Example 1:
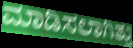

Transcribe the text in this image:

ಮಾಡಿಸಲಾಗಿತ್ತು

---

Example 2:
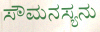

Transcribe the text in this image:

ಸೌಮನಸ್ಯನು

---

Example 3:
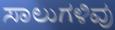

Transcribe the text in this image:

ಸಾಲುಗಳಿವು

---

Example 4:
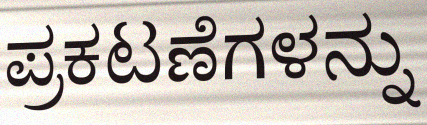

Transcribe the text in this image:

ಪ್ರಕಟಣೆಗಳನ್ನು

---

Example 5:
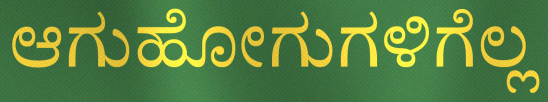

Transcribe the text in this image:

ಆಗುಹೋಗುಗಳಿಗೆಲ್ಲ